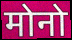
मोनो